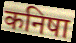
कनिषा